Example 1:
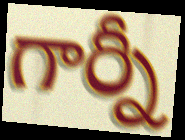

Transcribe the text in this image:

గార్నీ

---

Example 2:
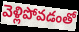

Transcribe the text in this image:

వెళ్లిపోవడంతో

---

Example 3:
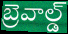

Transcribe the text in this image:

బ్రెవాల్డ్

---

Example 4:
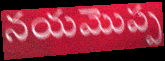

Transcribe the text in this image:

నయమొప్ప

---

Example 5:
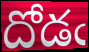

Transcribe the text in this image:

దోడఁ